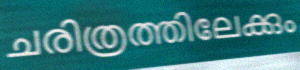
ചരിത്രത്തിലേക്കും